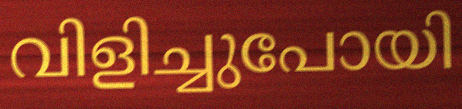
വിളിച്ചുപോയി